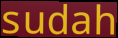
sudah